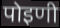
पोइणी